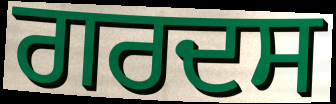
ਗਰਦਸ